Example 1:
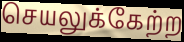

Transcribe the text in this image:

செயலுக்கேற்ற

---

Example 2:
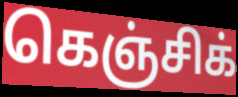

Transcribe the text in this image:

கெஞ்சிக்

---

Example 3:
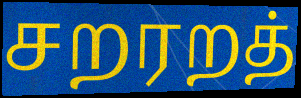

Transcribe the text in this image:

சறரறத்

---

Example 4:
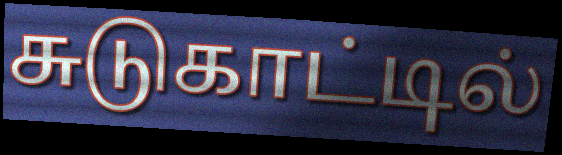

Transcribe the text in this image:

சுடுகாட்டில்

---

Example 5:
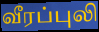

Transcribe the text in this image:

வீரப்புலி